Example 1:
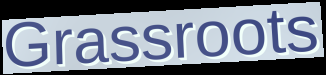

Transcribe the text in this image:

Grassroots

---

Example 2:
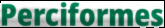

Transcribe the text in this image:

Perciformes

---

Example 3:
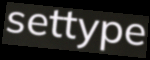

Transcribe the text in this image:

settype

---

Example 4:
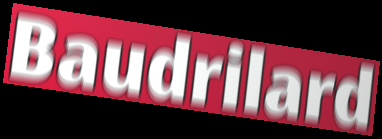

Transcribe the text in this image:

Baudrilard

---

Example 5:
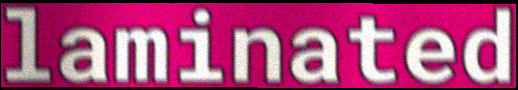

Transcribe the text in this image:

laminated